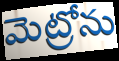
మెట్రోను